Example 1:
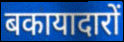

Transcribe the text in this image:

बकायादारों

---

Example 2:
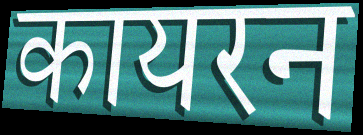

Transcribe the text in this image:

कायरन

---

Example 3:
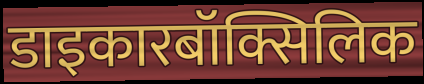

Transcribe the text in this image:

डाइकारबॉक्सिलिक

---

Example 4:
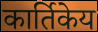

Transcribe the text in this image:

कार्तिकेय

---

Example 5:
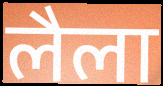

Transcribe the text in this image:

लैला